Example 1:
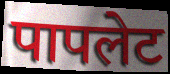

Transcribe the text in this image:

पापलेट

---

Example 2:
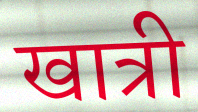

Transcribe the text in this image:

खात्री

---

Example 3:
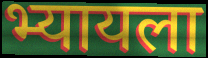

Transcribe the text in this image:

भ्यायला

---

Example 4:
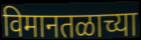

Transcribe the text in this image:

विमानतळाच्या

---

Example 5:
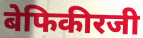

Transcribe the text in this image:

बेफिकीरजी